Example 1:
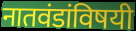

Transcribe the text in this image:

नातवंडांविषयी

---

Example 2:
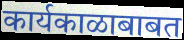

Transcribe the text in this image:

कार्यकाळाबाबत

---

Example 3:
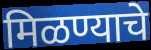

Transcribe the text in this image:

मिळण्याचे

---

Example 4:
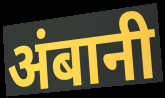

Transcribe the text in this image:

अंबानी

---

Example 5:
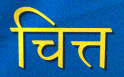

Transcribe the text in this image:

चित्त